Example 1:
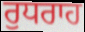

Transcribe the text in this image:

ਰੁਧਰਾਹ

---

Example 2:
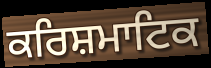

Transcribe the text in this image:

ਕਰਿਸ਼ਮਾਟਿਕ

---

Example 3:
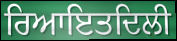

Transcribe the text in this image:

ਰਿਆਇਤਦਿਲੀ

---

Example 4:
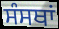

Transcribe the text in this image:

ਸੰਸਥਾਂ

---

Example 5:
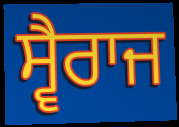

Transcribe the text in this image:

ਸ੍ਵੈਰਾਜ